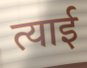
त्याई